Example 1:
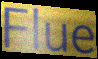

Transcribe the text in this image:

Flue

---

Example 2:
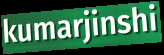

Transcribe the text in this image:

kumarjinshi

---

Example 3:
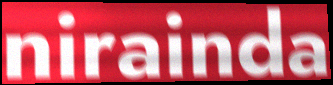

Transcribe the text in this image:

nirainda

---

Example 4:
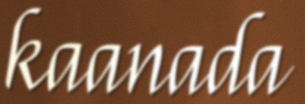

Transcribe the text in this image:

kaanada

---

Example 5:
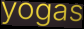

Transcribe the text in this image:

yogas